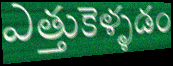
ఎత్తుకెళ్ళడం